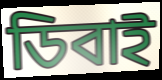
ডিবাই